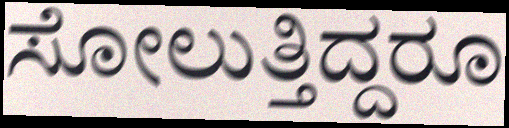
ಸೋಲುತ್ತಿದ್ದರೂ